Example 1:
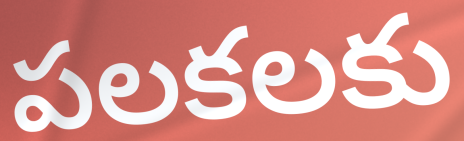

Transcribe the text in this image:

పలకలకు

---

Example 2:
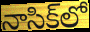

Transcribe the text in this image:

నాసిక్‌లో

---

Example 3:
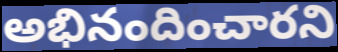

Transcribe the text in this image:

అభినందించారని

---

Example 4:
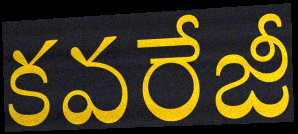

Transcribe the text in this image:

కవరేజీ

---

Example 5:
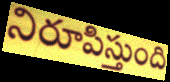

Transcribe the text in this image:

నిరూపిస్తుంది